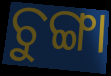
ଚୁଙ୍ଗା